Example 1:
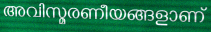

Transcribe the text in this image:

അവിസ്മരണീയങ്ങളാണ്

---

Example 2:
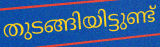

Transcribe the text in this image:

തുടങ്ങിയിട്ടുണ്ട്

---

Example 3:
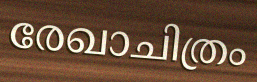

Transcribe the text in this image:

രേഖാചിത്രം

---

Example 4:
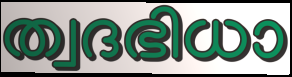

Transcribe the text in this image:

ത്വദഭിധാ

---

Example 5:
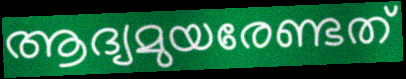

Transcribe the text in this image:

ആദ്യമുയരേണ്ടത്